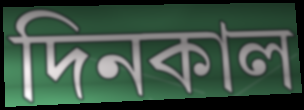
দিনকাল